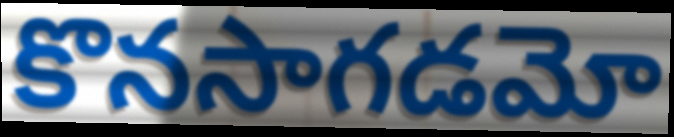
కొనసాగడమో